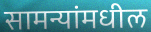
सामन्यांमधील